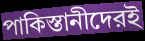
পাকিস্তানীদেরই